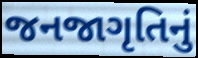
જનજાગૃતિનું